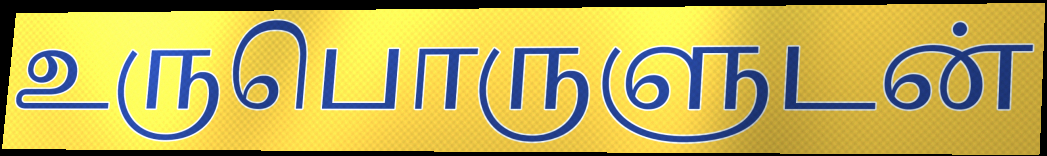
உருபொருளுடன்